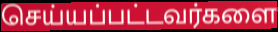
செய்யப்பட்டவர்களை